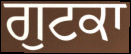
ਗੁਟਕਾ